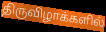
திருவிழாக்களில்